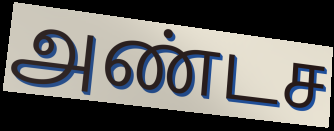
அண்டச